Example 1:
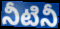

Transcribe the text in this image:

నీటినీ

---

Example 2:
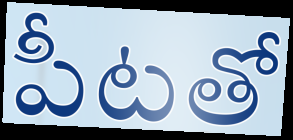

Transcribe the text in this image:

పీటతో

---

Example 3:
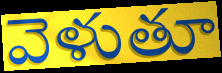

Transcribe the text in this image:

వెళుతూ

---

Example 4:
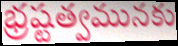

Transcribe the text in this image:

భ్రష్టత్వమునకు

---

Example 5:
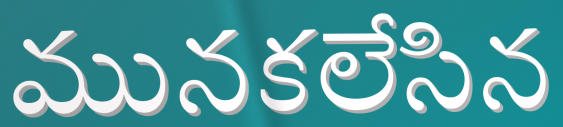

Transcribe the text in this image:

మునకలేసిన